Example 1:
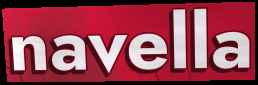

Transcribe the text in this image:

navella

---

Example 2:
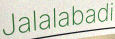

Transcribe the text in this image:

Jalalabadi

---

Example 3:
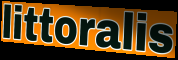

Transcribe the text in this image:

littoralis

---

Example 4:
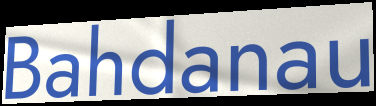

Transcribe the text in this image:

Bahdanau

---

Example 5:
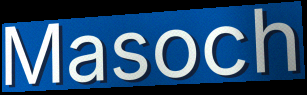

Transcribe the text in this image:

Masoch